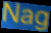
Nag